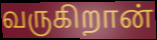
வருகிறான்